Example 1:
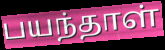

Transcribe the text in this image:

பயந்தாள்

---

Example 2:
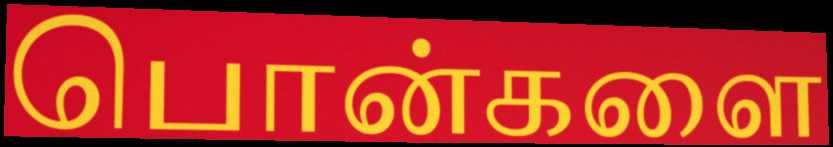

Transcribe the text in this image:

பொன்களை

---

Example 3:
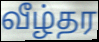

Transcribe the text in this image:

வீழ்தர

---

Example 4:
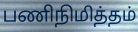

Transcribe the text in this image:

பணிநிமித்தம்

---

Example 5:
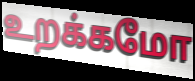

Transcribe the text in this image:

உறக்கமோ